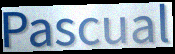
Pascual